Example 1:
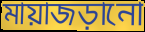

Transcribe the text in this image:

মায়াজড়ানো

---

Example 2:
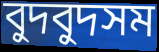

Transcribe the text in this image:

বুদবুদসম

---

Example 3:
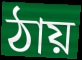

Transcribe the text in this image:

ঠায়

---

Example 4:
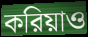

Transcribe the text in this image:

করিয়াও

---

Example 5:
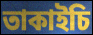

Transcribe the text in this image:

তাকাইচি